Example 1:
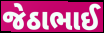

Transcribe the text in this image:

જેઠાભાઈ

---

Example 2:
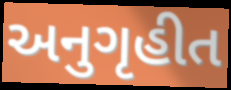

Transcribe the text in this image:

અનુગૃહીત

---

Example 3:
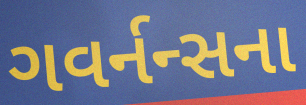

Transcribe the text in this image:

ગવર્નન્સના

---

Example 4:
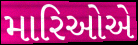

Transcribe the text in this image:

મારિઓએ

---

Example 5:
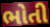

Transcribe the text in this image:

ભોતી